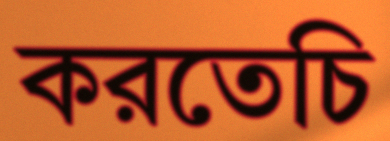
করতেচি